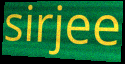
sirjee